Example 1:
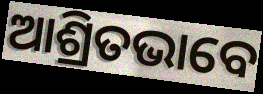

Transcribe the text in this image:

ଆଶ୍ରିତଭାବେ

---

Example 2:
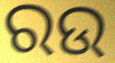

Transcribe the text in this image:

ରଉ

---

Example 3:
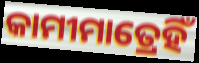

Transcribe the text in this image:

କାମୀମାତ୍ରେହିଁ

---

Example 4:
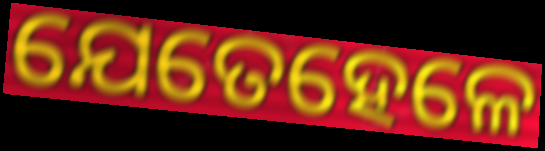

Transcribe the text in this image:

ଯେତେହେଳେ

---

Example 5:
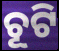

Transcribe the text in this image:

ଚୂଟି